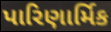
પારિણાર્મિક